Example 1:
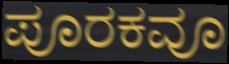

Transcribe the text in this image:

ಪೂರಕವೂ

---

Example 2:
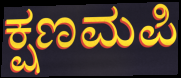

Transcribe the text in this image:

ಕ್ಷಣಮಪಿ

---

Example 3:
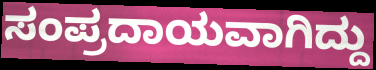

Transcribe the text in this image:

ಸಂಪ್ರದಾಯವಾಗಿದ್ದು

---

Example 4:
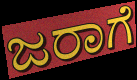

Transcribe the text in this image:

ಜರಾಗೆ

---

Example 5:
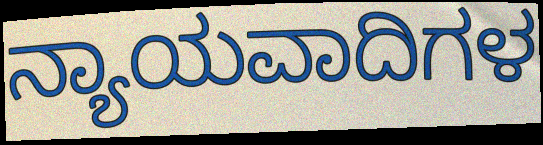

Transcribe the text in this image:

ನ್ಯಾಯವಾದಿಗಳ